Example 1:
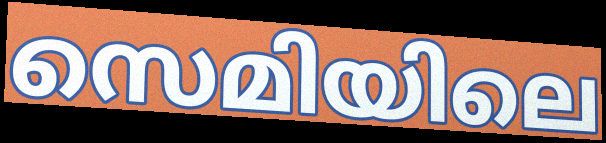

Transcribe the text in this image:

സെമിയിലെ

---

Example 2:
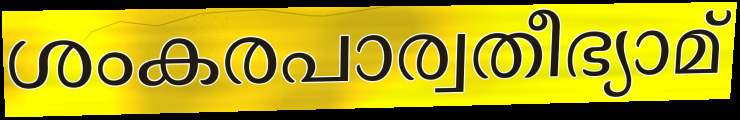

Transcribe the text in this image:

ശംകരപാര്വതീഭ്യാമ്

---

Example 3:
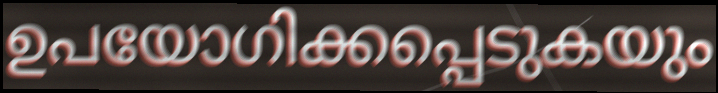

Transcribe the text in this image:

ഉപയോഗിക്കപ്പെടുകയും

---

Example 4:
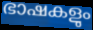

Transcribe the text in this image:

ഭാഷകളും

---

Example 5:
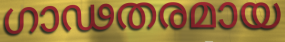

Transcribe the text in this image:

ഗാഢതരമായ